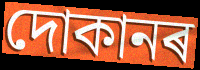
দোকানৰ